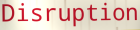
Disruption